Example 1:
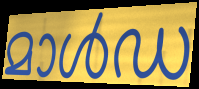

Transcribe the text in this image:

മാൾഡ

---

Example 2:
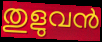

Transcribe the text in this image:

തുളുവൻ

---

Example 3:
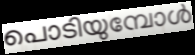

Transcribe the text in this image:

പൊടിയുമ്പോൾ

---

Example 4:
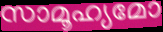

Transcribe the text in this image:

സാമൂഹ്യമോ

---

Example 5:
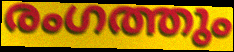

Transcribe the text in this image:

രംഗത്തും